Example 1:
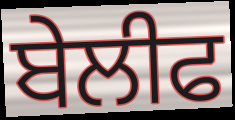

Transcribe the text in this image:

ਬੇਲੀਫ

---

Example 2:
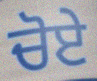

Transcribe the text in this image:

ਚੋਏ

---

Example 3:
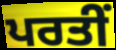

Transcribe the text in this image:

ਪਰਤੀਂ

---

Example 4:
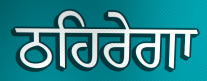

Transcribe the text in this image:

ਠਹਿਰੇਗਾ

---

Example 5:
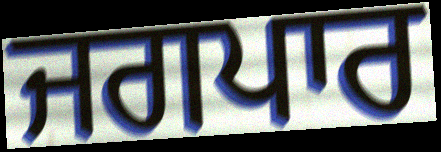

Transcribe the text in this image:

ਜਗਪਾਰ